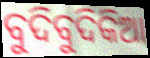
ବୁଦିବୁଦିକିଆ